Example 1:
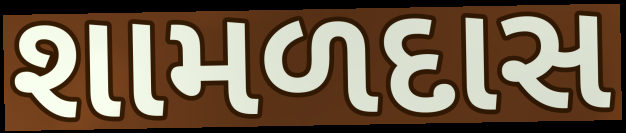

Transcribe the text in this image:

શામળદાસ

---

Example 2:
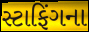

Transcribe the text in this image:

સ્ટાફિંગના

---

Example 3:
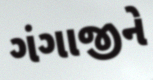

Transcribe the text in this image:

ગંગાજીને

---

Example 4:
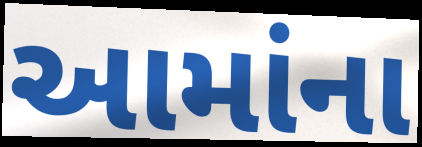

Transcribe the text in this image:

આમાંના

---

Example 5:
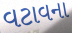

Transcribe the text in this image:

વટાવના